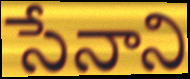
సేనాని